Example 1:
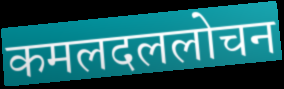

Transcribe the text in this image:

कमलदललोचन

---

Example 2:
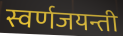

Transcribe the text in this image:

स्वर्णजयन्ती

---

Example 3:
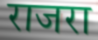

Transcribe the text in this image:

राजरा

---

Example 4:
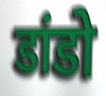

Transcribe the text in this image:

डांडो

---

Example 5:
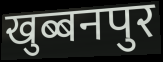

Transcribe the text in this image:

खुब्बनपुर